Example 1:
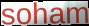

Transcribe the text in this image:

soham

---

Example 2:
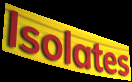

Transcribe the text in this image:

Isolates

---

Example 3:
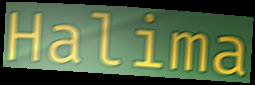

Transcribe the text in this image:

Halima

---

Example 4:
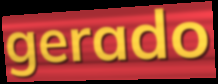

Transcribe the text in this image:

gerado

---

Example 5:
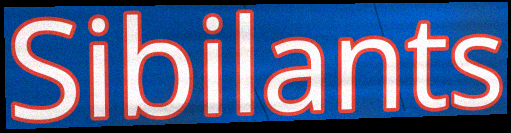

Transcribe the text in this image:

Sibilants